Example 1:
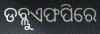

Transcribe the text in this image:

ଡବ୍ଲୁଏଫପିରେ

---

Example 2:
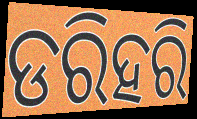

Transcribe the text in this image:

ଡରିହରି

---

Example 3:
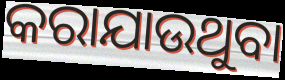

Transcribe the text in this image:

କରାଯାଉଥୁବା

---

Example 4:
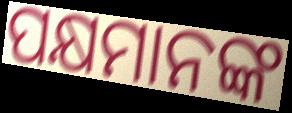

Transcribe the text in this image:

ପକ୍ଷମାନଙ୍କ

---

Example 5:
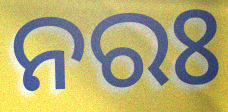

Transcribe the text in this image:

ନରଃ